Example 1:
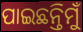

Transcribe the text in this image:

ପାଇଛନ୍ତିମୁଁ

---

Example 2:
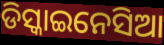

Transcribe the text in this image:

ଡିସ୍କାଇନେସିଆ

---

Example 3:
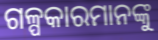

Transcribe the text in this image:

ଗଳ୍ପକାରମାନଙ୍କୁ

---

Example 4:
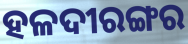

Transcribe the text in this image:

ହଳଦୀରଙ୍ଗର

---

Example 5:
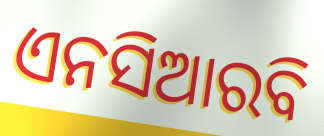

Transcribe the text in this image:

ଏନସିଆରବି